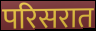
परिसरात